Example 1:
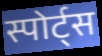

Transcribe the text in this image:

स्पोर्ट्स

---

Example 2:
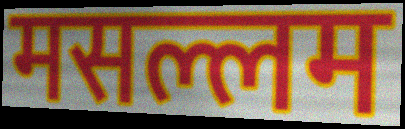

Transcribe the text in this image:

मसल्लम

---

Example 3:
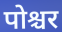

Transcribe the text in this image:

पोश्चर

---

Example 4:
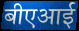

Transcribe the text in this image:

बीएआई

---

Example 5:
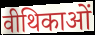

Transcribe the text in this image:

वीथिकाओं